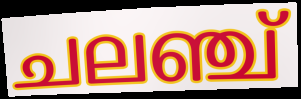
ചലഞ്ച്